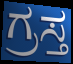
ಗ್ರಸ್ತ